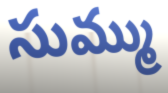
సుమ్ము